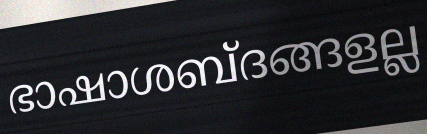
ഭാഷാശബ്ദങ്ങളല്ല